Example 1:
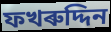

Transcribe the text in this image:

ফখৰুদ্দিন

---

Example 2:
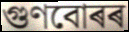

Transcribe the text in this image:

গুণবোৰৰ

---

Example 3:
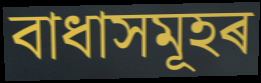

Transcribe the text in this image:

বাধাসমূহৰ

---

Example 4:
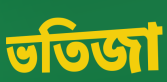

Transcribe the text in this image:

ভতিজা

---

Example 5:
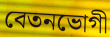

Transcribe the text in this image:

বেতনভোগী